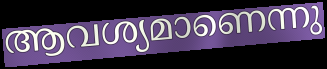
ആവശ്യമാണെന്നു